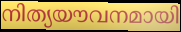
നിത്യയൗവനമായി